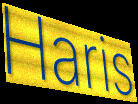
Haris